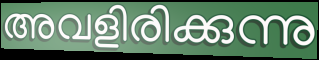
അവളിരിക്കുന്നു